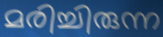
മരിച്ചിരുന്ന